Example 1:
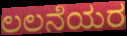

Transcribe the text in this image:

ಲಲನೆಯರ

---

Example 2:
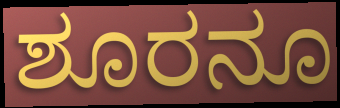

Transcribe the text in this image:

ಶೂರನೂ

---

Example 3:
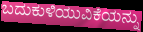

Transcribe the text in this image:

ಬದುಕುಳಿಯುವಿಕೆಯನ್ನು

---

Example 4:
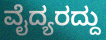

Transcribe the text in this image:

ವೈದ್ಯರದ್ದು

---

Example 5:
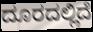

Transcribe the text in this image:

ದೂರದಲ್ಲಿದೆ